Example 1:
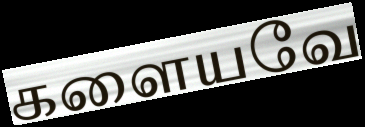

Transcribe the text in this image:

களையவே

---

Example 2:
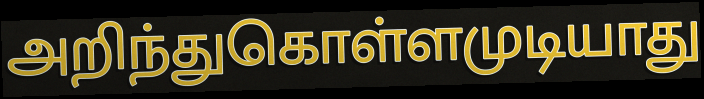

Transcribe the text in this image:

அறிந்துகொள்ளமுடியாது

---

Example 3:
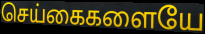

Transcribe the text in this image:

செய்கைகளையே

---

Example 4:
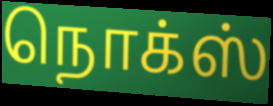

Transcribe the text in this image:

நொக்ஸ்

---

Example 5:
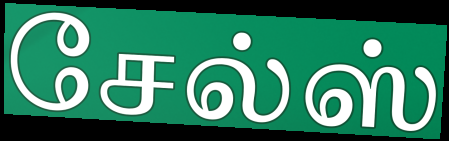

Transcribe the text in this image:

சேல்ஸ்